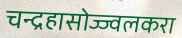
चन्द्रहासोज्ज्वलकरा